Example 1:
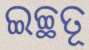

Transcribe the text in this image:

ଇଚ୍ଛତୂ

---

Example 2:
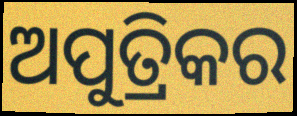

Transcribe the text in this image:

ଅପୁତ୍ରିକର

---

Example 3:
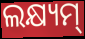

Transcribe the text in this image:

ଲକ୍ଷ୍ୟମ୍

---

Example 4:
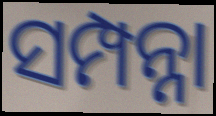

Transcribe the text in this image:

ସମ୍ପନ୍ନା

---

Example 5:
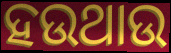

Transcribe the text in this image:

ହଉଥାଉ